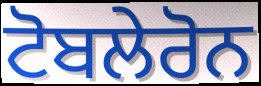
ਟੋਬਲੇਰੋਨ